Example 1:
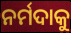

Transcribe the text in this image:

ନର୍ମଦାକୁ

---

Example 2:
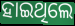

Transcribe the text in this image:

ହାଇଥିଲେ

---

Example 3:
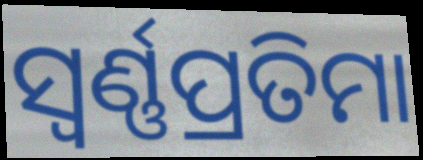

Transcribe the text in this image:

ସ୍ୱର୍ଣ୍ଣପ୍ରତିମା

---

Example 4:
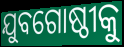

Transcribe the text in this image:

ଯୁବଗୋଷ୍ଠୀକୁ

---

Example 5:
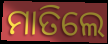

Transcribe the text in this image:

ମାତିଲେ